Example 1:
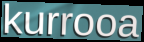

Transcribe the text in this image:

kurrooa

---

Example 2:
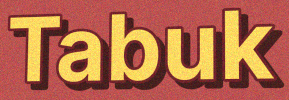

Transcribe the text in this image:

Tabuk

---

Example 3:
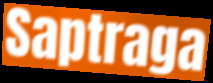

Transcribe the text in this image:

Saptraga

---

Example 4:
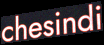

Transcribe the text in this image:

chesindi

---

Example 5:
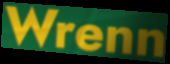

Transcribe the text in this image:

Wrenn